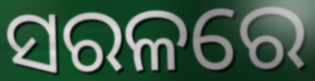
ସରଳରେ